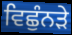
ਵਿਛੁੰਨੜੇ